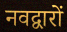
नवद्वारों